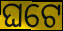
ଘଟେ